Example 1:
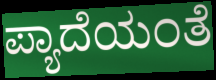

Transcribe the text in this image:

ಪ್ಯಾದೆಯಂತೆ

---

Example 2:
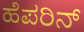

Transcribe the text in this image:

ಹೆಪರಿನ್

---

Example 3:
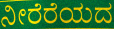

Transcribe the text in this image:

ನೀರೆರೆಯದ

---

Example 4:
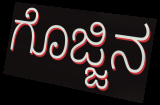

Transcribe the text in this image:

ಗೊಜ್ಜಿನ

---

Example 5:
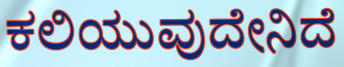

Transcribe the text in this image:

ಕಲಿಯುವುದೇನಿದೆ